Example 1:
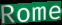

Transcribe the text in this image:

Rome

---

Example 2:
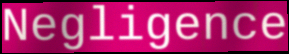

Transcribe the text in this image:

Negligence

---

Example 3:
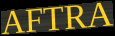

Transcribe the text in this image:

AFTRA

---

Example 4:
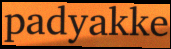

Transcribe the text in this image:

padyakke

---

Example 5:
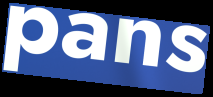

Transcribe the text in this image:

pans